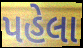
પહેલા